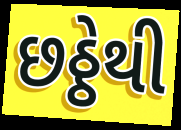
છઠ્ઠેથી